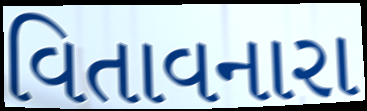
વિતાવનારા